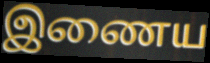
இணைய